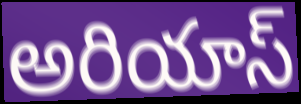
అరియాస్